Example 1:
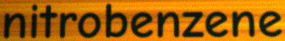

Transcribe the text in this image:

nitrobenzene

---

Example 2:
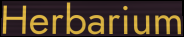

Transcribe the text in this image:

Herbarium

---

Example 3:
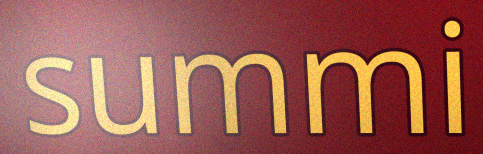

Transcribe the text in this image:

summi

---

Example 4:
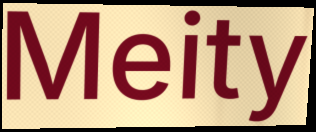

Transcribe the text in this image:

Meity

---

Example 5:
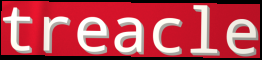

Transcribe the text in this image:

treacle